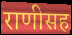
राणीसह